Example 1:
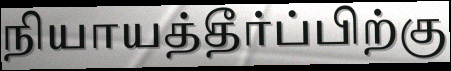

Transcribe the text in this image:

நியாயத்தீர்ப்பிற்கு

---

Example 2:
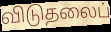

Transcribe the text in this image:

விடுதலைப்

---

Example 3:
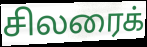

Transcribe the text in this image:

சிலரைக்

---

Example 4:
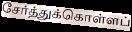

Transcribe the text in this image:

சேர்த்துக்கொள்ளப்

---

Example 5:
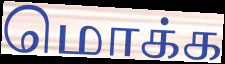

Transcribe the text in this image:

மொக்க